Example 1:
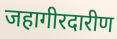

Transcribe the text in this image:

जहागीरदारीण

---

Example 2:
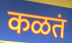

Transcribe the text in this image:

कळतं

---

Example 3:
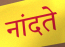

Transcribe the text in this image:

नांदते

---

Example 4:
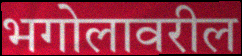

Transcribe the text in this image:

भगोलावरील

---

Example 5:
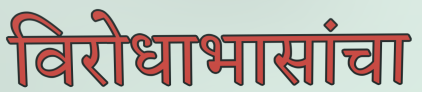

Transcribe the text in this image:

विरोधाभासांचा